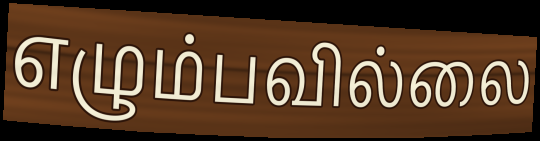
எழும்பவில்லை